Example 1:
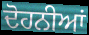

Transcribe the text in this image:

ਦੋਹਨੀਆਂ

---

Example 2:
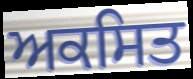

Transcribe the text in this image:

ਅਕਸਿਤ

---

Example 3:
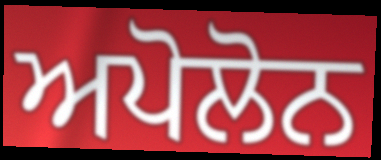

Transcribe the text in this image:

ਅਪੋਲੋਨ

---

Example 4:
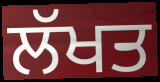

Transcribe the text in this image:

ਲੱਖਤ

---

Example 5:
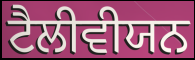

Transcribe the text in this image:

ਟੈਲੀਵੀਯਨ